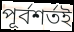
পূর্বশর্তই